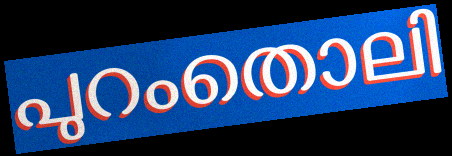
പുറംതൊലി